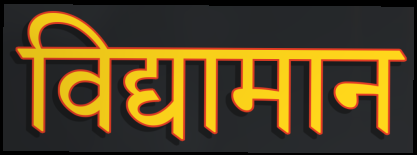
विद्यामान